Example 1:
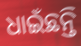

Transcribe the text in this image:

ଧାଇଁଛନ୍ତି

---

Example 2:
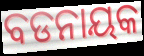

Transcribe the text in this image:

ବଡନାୟକ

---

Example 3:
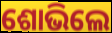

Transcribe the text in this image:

ଶୋଭିଲେ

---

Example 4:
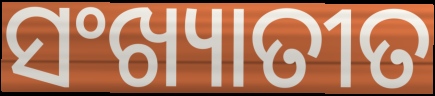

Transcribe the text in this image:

ସଂଖ୍ୟାତୀତ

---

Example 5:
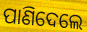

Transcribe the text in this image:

ପାଣିଦେଲେ